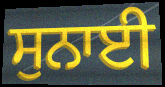
ਸੁਨਾਈ